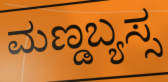
ಮಣ್ಡಬ್ಯಸ್ಸ